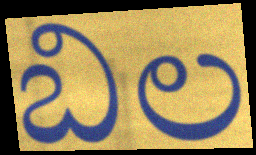
బిల